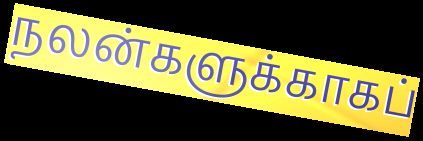
நலன்களுக்காகப்